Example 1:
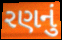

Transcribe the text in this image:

રણનું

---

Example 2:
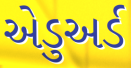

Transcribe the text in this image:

એડુઅર્ડ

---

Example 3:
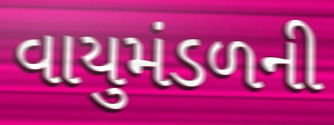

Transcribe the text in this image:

વાયુમંડળની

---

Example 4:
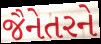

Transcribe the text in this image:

જૈનેતરને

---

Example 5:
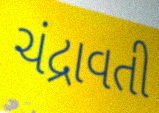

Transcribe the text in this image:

ચંદ્રાવતી